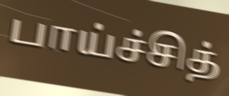
பாய்ச்சித்